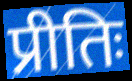
प्रीतिः